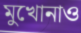
মুখোনাও